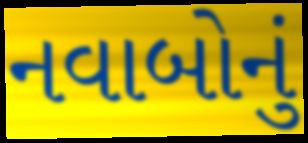
નવાબોનું